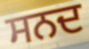
ਸਨਦ